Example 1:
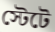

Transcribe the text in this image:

স্টেটে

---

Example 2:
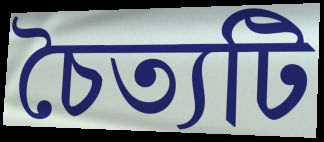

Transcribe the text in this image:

চৈত্যটি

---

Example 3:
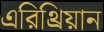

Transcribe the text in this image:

এরিথ্রিয়ান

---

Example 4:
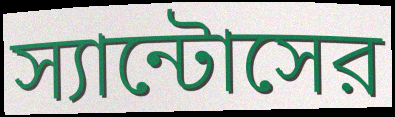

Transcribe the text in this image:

স্যান্টোসের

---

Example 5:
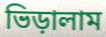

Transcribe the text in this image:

ভিড়ালাম